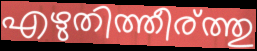
എഴുതിത്തീര്ത്തു